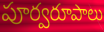
పూర్వరూపాలు